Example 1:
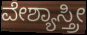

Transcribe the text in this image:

ವೇಶ್ಯಾಸ್ತ್ರೀ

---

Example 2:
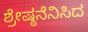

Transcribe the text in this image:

ಶ್ರೇಷ್ಠನೆನಿಸಿದ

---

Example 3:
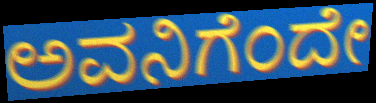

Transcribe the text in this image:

ಅವನಿಗೆಂದೇ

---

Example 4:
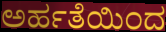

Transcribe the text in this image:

ಅರ್ಹತೆಯಿಂದ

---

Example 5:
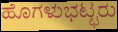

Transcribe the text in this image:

ಹೊಗಳುಭಟ್ಟರು